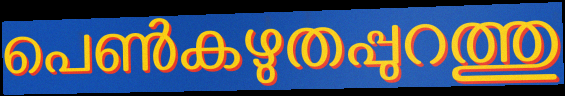
പെൺകഴുതപ്പുറത്തു